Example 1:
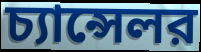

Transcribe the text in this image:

চ্যান্সেলর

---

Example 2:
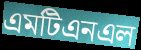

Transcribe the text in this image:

এমটিএনএল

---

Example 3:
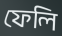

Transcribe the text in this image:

ফেলি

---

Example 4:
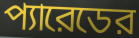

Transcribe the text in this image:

প্যারেডের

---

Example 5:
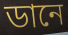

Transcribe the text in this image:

ডানে